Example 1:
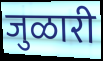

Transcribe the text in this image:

जुळारी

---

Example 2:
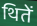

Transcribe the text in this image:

थितें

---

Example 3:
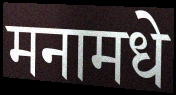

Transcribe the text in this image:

मनामधे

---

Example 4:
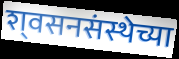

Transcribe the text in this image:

श्वसनसंस्थेच्या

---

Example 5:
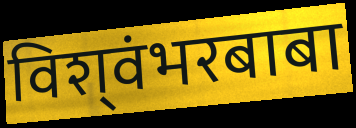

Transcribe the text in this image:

विश्वंभरबाबा